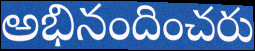
అభినందించరు